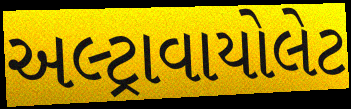
અલ્ટ્રાવાયોલેટ